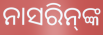
ନାସରିନ୍‌ଙ୍କ